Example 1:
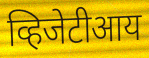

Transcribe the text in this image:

व्हिजेटीआय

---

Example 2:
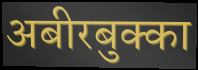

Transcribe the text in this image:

अबीरबुक्का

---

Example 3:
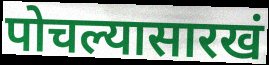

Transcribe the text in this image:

पोचल्यासारखं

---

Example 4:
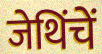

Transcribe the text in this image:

जेथिंचें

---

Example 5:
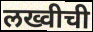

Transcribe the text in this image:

लख्वीची